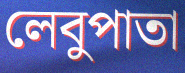
লেবুপাতা